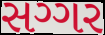
સગ્ગર